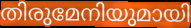
തിരുമേനിയുമായി